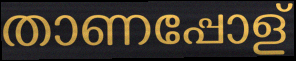
താണപ്പോള്